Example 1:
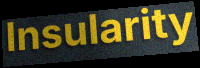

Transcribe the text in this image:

Insularity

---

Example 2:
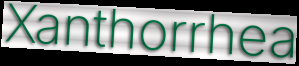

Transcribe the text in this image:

Xanthorrhea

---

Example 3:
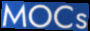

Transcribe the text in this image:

MOCs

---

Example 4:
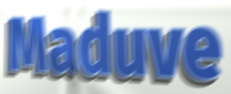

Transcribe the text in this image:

Maduve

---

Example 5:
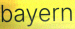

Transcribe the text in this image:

bayern